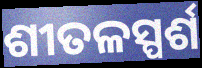
ଶୀତଳସ୍ପର୍ଶ